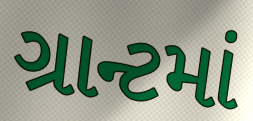
ગ્રાન્ટમાં